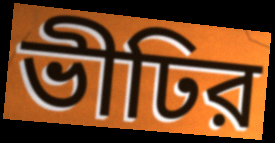
ভীঢির